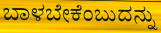
ಬಾಳಬೇಕೆಂಬುದನ್ನು